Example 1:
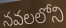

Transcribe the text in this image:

నవలలోని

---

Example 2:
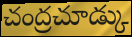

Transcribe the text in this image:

చంద్రచూడ్కు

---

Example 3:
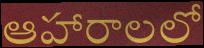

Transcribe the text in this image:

ఆహారాలలో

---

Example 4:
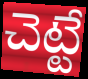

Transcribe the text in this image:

చెట్టే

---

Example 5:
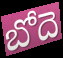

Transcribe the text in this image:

బోదె